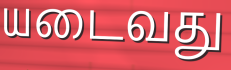
யடைவது